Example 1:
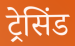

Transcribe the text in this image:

ट्रेसिंड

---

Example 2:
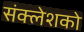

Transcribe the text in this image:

संक्लेशको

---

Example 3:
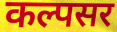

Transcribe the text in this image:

कल्पसर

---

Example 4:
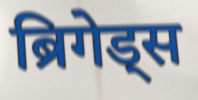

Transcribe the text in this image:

ब्रिगेड्स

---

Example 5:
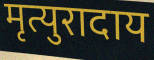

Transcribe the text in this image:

मृत्युरादाय